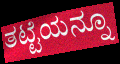
ತಟ್ಟೆಯನ್ನೂ